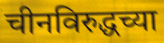
चीनविरुद्धच्या